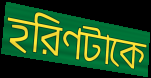
হরিণটাকে